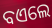
ବଏଲେ